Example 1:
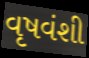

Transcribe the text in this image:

વૃષવંશી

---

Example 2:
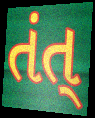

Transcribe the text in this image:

તંત્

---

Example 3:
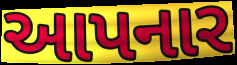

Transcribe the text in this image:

આપનાર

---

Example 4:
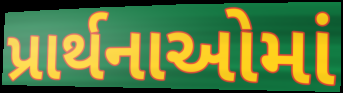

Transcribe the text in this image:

પ્રાર્થનાઓમાં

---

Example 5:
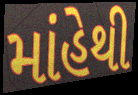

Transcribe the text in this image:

માંહેથી